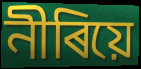
নীৰিয়ে